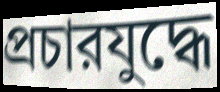
প্রচারযুদ্ধে